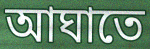
আঘাতে